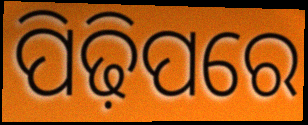
ପିଢ଼ିପରେ